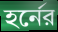
হর্নের